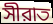
সীরাত